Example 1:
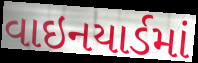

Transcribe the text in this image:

વાઇનયાર્ડમાં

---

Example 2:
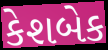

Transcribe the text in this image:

કેશબેક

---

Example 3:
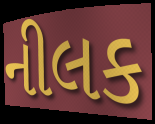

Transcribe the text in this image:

નીલક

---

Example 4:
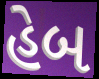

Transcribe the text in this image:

હેબ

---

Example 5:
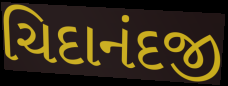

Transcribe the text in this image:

ચિદાનંદજી